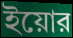
ইয়োর